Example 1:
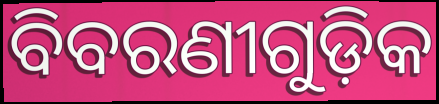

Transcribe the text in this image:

ବିବରଣୀଗୁଡ଼ିକ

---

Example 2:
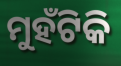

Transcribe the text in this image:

ମୁହଁଟିକି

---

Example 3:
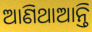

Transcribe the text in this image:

ଆଣିଥାଆନ୍ତି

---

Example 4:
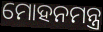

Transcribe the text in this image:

ମୋହନମନ୍ତ୍ର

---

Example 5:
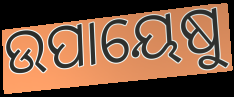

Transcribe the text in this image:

ଉପାୟେଷୁ